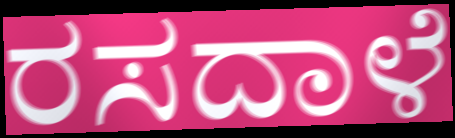
ರಸದಾಳೆ